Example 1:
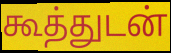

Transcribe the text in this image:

கூத்துடன்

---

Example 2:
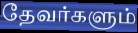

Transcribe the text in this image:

தேவர்களும்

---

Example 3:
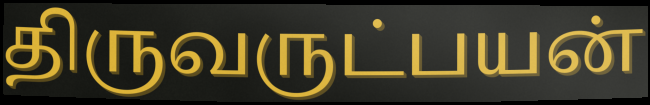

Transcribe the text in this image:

திருவருட்பயன்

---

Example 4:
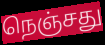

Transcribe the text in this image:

நெஞ்சது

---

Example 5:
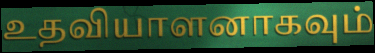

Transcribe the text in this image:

உதவியாளனாகவும்